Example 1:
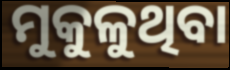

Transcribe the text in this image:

ମୁକୁଳୁଥିବା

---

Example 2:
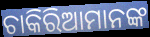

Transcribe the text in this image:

ଚାକିରିଆମାନଙ୍କ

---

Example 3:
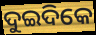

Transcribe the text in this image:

ଦୁଇଦିକେ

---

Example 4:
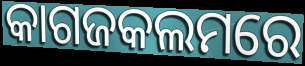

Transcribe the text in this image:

କାଗଜକଲମରେ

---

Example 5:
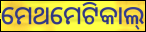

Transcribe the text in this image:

ମେଥମେଟିକାଲ୍